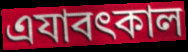
এযাবৎকাল